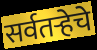
सर्वतऱ्हेचे